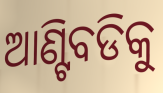
ଆଣ୍ଟିବଡିକୁ